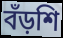
বঁড়শি